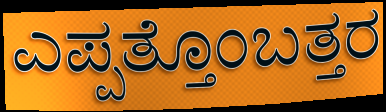
ಎಪ್ಪತ್ತೊಂಬತ್ತರ